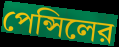
পেন্সিলের